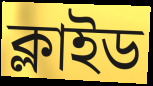
ক্লাইড